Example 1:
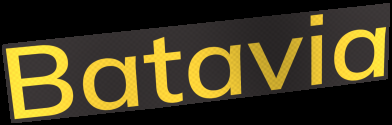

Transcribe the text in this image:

Batavia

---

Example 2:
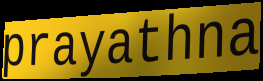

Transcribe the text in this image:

prayathna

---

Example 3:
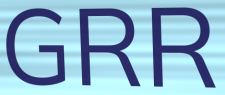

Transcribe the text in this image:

GRR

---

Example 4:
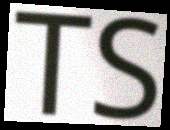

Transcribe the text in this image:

TS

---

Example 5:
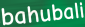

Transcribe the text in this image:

bahubali